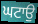
ਘਟਾਉ